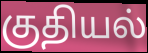
குதியல்